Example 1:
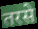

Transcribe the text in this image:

तरसे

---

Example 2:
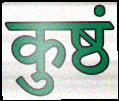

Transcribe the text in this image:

कुष्ठं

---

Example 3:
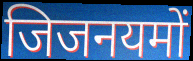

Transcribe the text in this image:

जिजनयमों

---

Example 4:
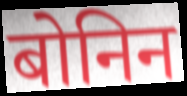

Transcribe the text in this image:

बोनिन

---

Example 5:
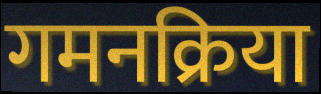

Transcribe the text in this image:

गमनक्रिया